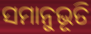
ସମାନୁଭୂତି